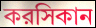
করসিকান